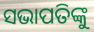
ସଭାପତିଙ୍କୁ